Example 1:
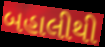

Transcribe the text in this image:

બહાલીથી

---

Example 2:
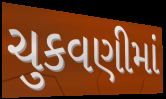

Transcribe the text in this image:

ચુકવણીમાં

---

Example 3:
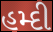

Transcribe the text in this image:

હમ્દી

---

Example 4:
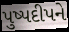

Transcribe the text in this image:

પુષ્પદીપને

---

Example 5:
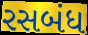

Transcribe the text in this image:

રસબંધ